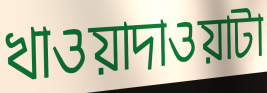
খাওয়াদাওয়াটা